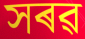
সৰৱ